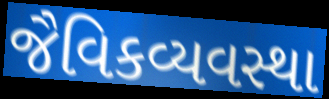
જૈવિકવ્યવસ્થા